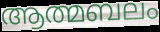
ആത്മബലം